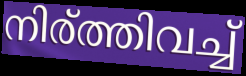
നിര്ത്തിവച്ച്